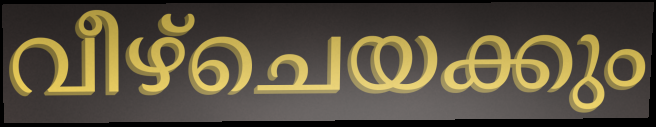
വീഴ്ചെയക്കും